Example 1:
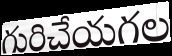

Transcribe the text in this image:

గురిచేయగల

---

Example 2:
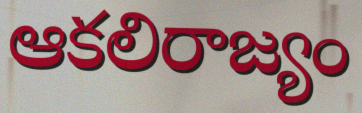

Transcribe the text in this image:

ఆకలిరాజ్యం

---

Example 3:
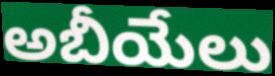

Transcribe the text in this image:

అబీయేలు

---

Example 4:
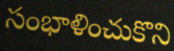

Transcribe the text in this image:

సంభాళించుకొని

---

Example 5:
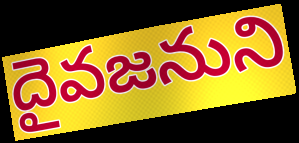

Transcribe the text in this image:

దైవజనుని